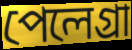
পেলেগ্রা